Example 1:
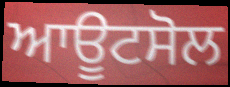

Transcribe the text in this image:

ਆਊਟਸੋਲ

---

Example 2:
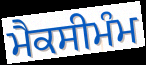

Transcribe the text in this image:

ਮੈਕਸੀਮੰਮ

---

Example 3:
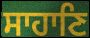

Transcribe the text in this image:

ਸਾਹਾਣਿ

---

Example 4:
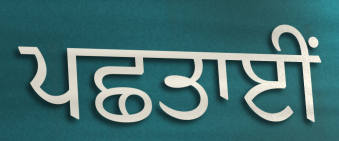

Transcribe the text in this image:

ਪਛਤਾਈਂ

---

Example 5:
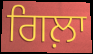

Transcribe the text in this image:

ਗਿਲ਼ਾ